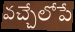
వచ్చేలోపే